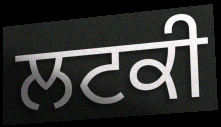
ਲਟਕੀ